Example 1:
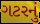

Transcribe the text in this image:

ગટરનું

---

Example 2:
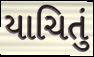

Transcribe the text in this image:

યાચિતું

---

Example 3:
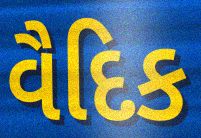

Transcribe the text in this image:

વૈદિક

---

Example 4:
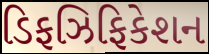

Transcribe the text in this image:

ડિફઝિફિકેશન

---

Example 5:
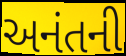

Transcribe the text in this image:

અનંતની